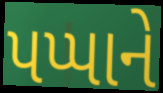
પપ્પાને